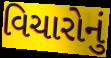
વિચારોનું